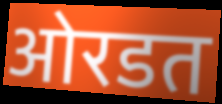
ओरडत